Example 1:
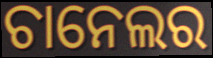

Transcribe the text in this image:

ଚାନେଲର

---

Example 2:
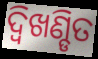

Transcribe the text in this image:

ଦ୍ଵିଖଣ୍ଡିତ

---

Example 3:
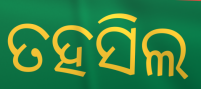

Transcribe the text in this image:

ତହସିଲ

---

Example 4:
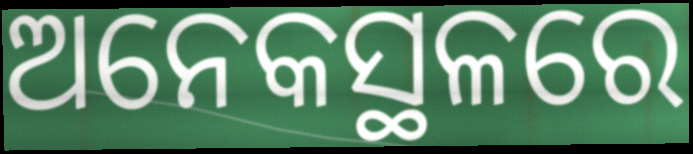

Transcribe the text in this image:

ଅନେକସ୍ଥଳରେ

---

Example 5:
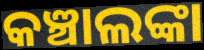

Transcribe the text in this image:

କଞ୍ଚାଲଙ୍କା